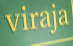
viraja